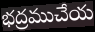
భద్రముచేయ